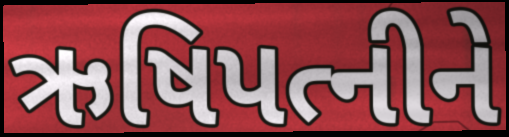
ઋષિપત્નીને